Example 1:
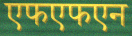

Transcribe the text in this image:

एफएफएन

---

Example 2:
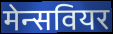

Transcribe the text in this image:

मेन्सवियर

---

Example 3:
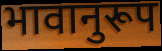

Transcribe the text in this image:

भावानुरूप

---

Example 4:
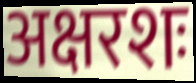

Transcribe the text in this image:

अक्षरशः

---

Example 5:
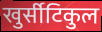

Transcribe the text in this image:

खुर्सीटिकुल